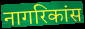
नागरिकांस